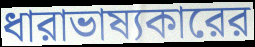
ধারাভাষ্যকারের